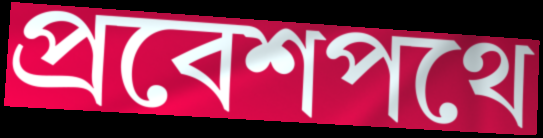
প্রবেশপথে